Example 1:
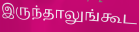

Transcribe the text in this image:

இருந்தாலுங்கூட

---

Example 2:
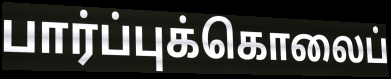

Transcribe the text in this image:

பார்ப்புக்கொலைப்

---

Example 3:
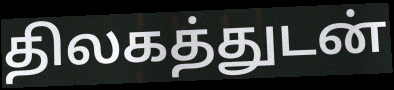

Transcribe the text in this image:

திலகத்துடன்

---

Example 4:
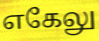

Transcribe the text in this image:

எகேலு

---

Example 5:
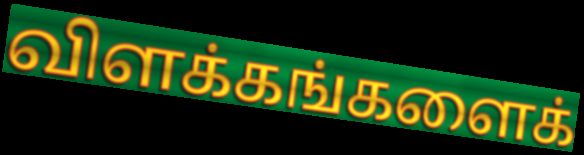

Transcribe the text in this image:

விளக்கங்களைக்